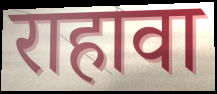
राहावा